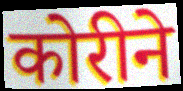
कोरीने